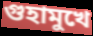
গুহামুখে